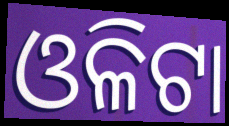
ଓଳିଟା